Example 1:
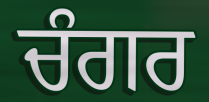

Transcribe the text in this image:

ਚੰਗਰ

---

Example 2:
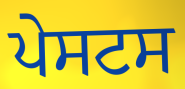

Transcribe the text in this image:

ਪੇਸਟਸ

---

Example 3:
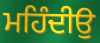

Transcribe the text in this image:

ਮਹਿੰਦੀਉ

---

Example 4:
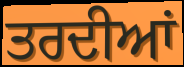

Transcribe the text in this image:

ਤਰਦੀਆਂ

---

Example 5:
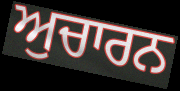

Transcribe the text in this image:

ਅੁਚਾਰਨ